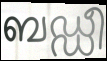
ബഡ്ഡീ